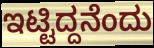
ಇಟ್ಟಿದ್ದನೆಂದು